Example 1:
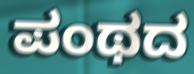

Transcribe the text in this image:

ಪಂಥದ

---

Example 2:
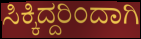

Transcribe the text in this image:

ಸಿಕ್ಕಿದ್ದರಿಂದಾಗಿ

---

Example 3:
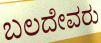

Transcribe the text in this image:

ಬಲದೇವರು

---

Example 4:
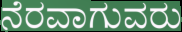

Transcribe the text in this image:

ನೆರವಾಗುವರು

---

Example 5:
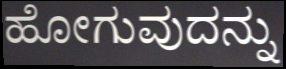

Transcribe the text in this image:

ಹೋಗುವುದನ್ನು